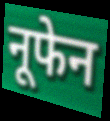
नूफेन